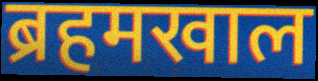
ब्रहमखाल